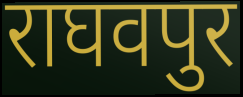
राघवपुर